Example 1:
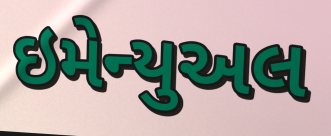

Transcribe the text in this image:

ઇમેન્યુઅલ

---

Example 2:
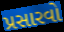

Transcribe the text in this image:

પ્રસારવો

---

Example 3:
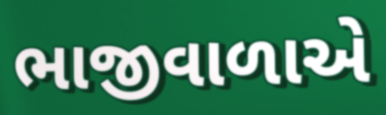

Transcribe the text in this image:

ભાજીવાળાએ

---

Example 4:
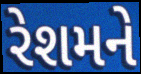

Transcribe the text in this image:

રેશમને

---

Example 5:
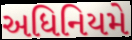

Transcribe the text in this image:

અધિનિયમે